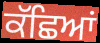
ਕੱਛਿਆਂ